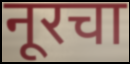
नूरचा